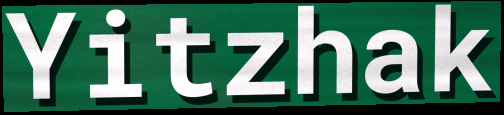
Yitzhak